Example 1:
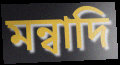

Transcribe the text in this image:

মন্বাদি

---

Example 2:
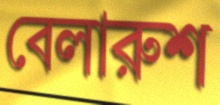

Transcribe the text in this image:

বেলারুশ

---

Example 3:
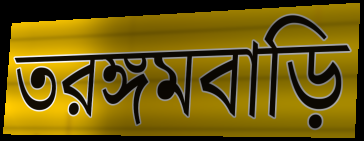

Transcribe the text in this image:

তরঙ্গমবাড়ি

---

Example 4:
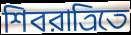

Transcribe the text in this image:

শিবরাত্রিতে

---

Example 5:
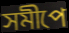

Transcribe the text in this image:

সমীপে